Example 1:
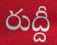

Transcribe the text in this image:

రుద్దీ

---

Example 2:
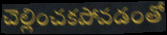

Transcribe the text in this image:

చెల్లించకపోవడంతో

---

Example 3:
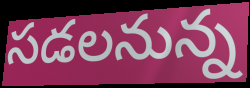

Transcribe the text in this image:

సడలనున్న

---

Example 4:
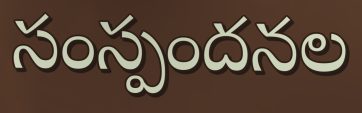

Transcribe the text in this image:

సంస్పందనల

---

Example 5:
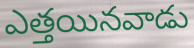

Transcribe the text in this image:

ఎత్తయినవాడు